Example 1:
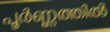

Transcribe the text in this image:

പൂർണ്ണത്തിൽ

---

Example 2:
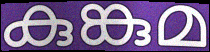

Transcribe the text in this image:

കുങ്കുമ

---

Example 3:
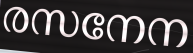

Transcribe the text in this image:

രസനേന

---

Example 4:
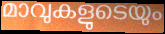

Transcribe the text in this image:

മാവുകളുടെയും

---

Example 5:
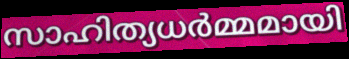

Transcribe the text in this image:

സാഹിത്യധർമ്മമായി